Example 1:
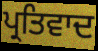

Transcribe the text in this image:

ਪ੍ਰਤਿਵਾਦ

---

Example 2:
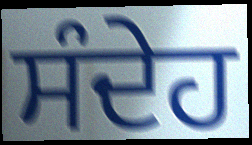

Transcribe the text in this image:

ਸੰਦੇਹ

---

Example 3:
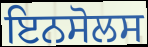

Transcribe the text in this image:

ਇਨਸੋਲਸ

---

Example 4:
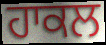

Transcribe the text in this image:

ਹਾਕਲ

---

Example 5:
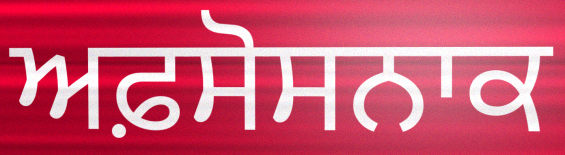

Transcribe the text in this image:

ਅਫ਼ਸੋਸਨਾਕ